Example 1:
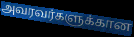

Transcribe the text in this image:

அவரவர்களுக்கான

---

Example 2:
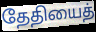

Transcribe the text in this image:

தேதியைத்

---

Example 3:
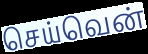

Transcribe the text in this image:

செய்வென்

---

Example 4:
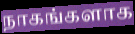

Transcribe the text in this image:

நாகங்களாக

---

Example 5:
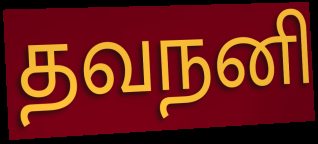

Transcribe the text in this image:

தவநனி